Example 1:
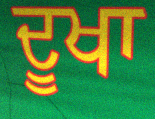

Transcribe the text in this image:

ਦੂਖਾ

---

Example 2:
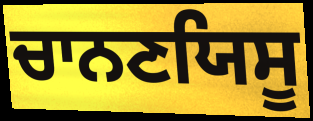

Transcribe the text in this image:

ਚਾਨਣਯਿਸੂ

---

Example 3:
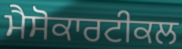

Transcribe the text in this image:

ਮੈਸੋਕਾਰਟੀਕਲ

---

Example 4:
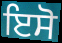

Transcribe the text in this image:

ਇਸੋ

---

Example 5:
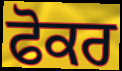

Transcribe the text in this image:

ਫੋਕਰ